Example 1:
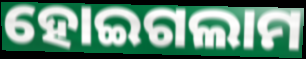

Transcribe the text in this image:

ହୋଇଗଲାମ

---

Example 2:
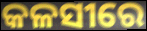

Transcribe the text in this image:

କଳସୀରେ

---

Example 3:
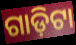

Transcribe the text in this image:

ଗାଡ଼ିଟା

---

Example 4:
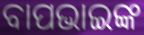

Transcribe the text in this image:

ବାପଭାଇଙ୍କ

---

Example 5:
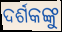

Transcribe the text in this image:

ଦର୍ଶକଙ୍କୁ